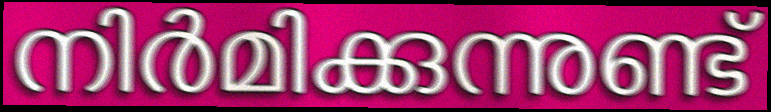
നിർമിക്കുന്നുണ്ട്